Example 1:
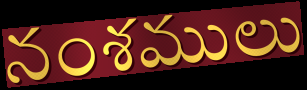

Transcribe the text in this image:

నంశములు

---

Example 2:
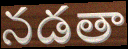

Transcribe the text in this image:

నడతా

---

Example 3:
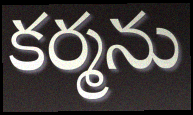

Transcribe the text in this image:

కర్మను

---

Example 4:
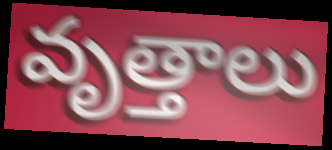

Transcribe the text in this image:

వృత్తాలు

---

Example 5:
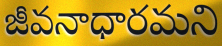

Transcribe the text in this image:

జీవనాధారమని